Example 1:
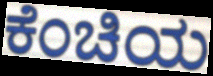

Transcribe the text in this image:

ಕೆಂಚಿಯ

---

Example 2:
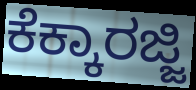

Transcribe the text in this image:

ಕೆಕ್ಕಾರಜ್ಜಿ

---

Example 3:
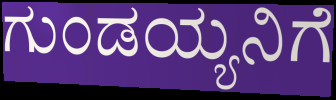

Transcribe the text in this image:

ಗುಂಡಯ್ಯನಿಗೆ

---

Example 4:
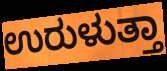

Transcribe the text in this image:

ಉರುಳುತ್ತಾ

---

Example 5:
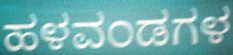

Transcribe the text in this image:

ಹಳವಂಡಗಳ